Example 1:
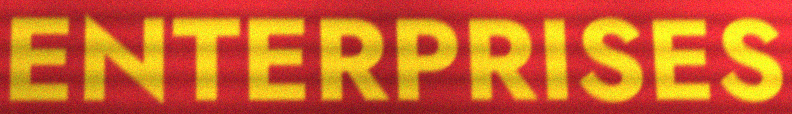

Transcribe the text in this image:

ENTERPRISES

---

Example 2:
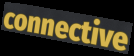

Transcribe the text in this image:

connective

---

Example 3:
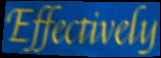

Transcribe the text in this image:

Effectively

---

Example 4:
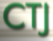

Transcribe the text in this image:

CTJ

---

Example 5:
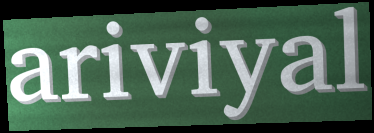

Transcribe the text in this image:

ariviyal